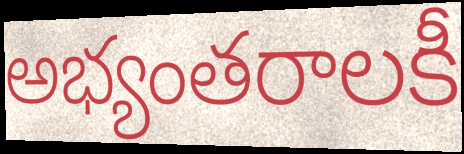
అభ్యంతరాలకీ